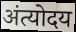
अंत्योदय